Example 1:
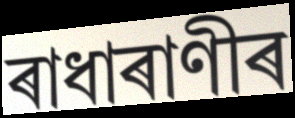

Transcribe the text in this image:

ৰাধাৰাণীৰ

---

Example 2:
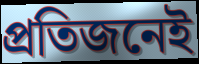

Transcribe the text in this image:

প্ৰতিজনেই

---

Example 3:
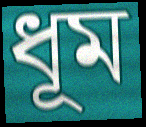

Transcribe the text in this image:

ধূম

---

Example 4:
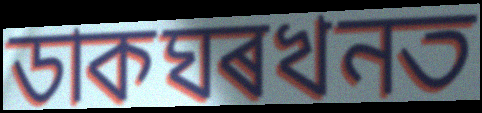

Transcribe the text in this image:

ডাকঘৰখনত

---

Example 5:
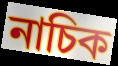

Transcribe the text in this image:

নাচিক